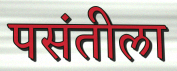
पसंतीला